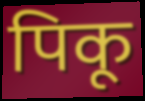
पिकू